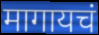
मागायचं